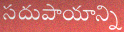
సదుపాయాన్ని